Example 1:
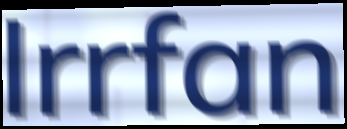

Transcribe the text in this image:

Irrfan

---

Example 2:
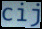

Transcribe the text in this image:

cij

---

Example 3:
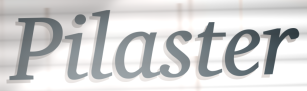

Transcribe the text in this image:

Pilaster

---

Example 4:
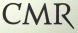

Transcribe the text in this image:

CMR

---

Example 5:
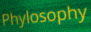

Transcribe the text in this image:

Phylosophy